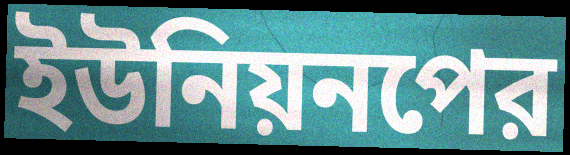
ইউনিয়নপের